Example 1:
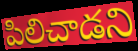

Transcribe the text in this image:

పిలిచాడని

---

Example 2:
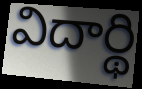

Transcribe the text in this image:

విదార్థి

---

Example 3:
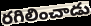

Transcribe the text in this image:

రగిలించాడు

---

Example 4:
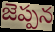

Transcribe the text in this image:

జెప్పన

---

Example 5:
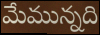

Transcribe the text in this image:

మేమున్నది